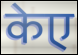
केए